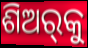
ଶିଅର୍‌କୁ